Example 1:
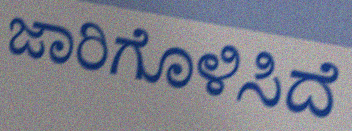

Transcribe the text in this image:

ಜಾರಿಗೊಳಿಸಿದೆ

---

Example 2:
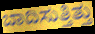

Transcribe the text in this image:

ಬಾದಿಸುತ್ತಿತ್ತು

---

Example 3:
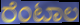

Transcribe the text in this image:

ರೆಂಟಾಲ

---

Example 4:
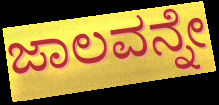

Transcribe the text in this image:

ಜಾಲವನ್ನೇ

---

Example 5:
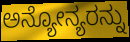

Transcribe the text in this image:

ಅನ್ಯೋನ್ಯರನ್ನು